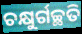
ଚକ୍ଷୁର୍ଗଚ୍ଛତି